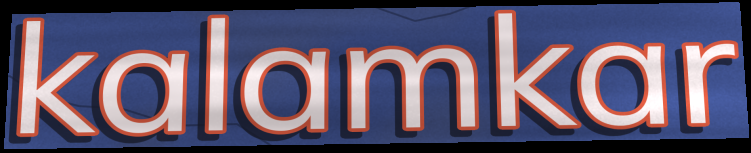
kalamkar